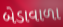
બેડાવાળા